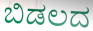
ಬಿಡಲದ